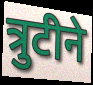
त्रुटीने